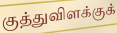
குத்துவிளக்குக்